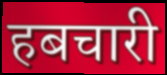
हबचारी